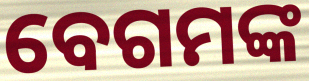
ବେଗମଙ୍କ